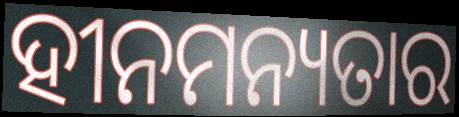
ହୀନମନ୍ୟତାର